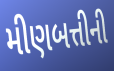
મીણબત્તીની